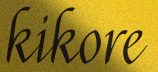
kikore